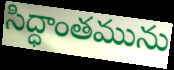
సిద్ధాంతమును